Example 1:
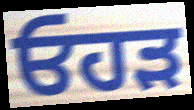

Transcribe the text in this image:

ਓਹੜ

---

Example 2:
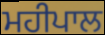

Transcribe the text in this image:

ਮਹੀਪਾਲ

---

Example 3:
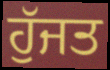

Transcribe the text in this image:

ਹੁੱਜਤ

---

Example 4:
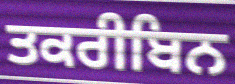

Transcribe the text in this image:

ਤਕਰੀਬਿਨ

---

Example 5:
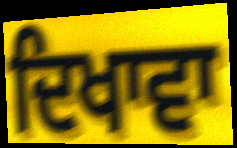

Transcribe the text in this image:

ਦਿਖਾਵਾ